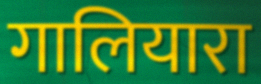
गालियारा